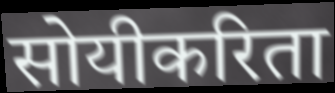
सोयीकरिता